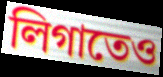
লিগাতেও